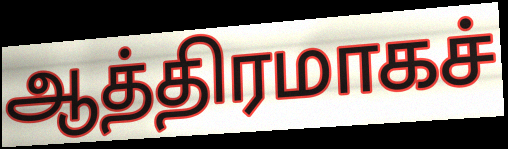
ஆத்திரமாகச்